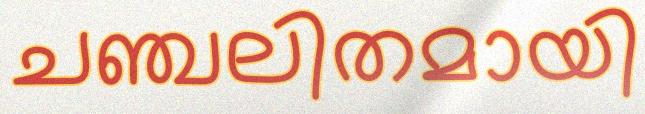
ചഞ്ചലിതമായി